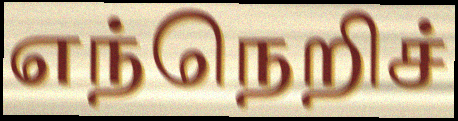
எந்நெறிச்